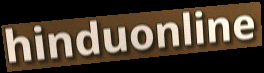
hinduonline